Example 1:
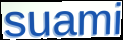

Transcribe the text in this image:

suami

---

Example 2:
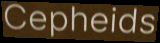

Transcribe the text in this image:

Cepheids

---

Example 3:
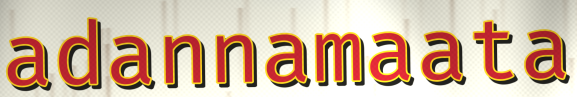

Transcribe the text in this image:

adannamaata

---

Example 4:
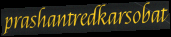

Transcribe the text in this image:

prashantredkarsobat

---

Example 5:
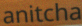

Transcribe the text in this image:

anitcha